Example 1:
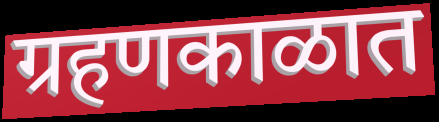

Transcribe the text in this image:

ग्रहणकाळात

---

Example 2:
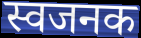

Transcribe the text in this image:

स्वजनक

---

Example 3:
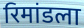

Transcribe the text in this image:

रिमांडला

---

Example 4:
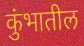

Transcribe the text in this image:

कुंभातील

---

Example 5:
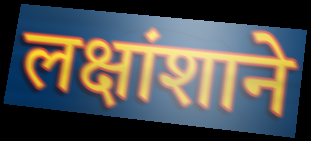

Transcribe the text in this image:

लक्षांशाने